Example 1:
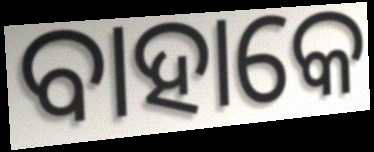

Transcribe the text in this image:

ବାହାକେ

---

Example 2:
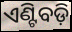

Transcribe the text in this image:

ଏଣ୍ଟିବଡ଼ି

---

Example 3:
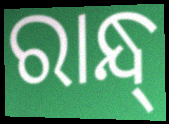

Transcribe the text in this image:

ରାନ୍ଧ୍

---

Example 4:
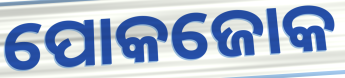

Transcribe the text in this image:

ପୋକଜୋକ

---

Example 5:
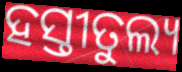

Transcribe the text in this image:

ହସ୍ତୀତୁଲ୍ୟ